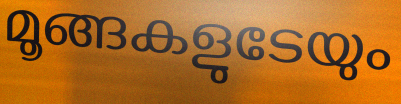
മൂങ്ങകളുടേയും